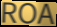
ROA